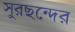
সুরছন্দের